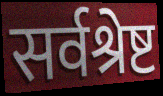
सर्वश्रेष्ट